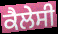
ਕੈਲੇਸੀ